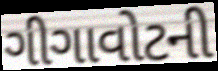
ગીગાવોટની